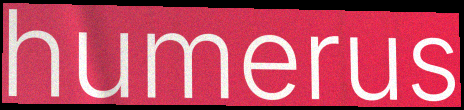
humerus